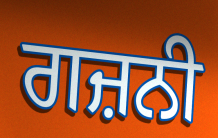
ਗਜ਼ਨੀ